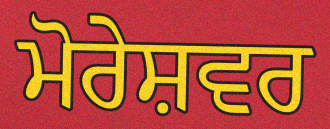
ਮੋਰੇਸ਼ਵਰ